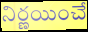
నిర్ణయించే